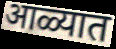
आळ्यात